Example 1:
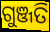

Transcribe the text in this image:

ଗୁଞ୍ଜତି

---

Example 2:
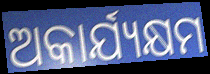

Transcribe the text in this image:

ଅକାର୍ଯ୍ୟକ୍ଷମ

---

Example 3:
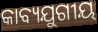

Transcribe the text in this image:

କାବ୍ୟଯୁଗୀୟ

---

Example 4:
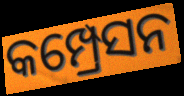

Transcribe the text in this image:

କମ୍ପ୍ରେସନ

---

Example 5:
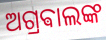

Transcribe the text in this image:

ଅଗ୍ରଵାଲଙ୍କ